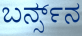
ಬರ್ನ್ಸ್‌ನ